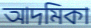
আদমিকা